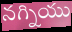
నగ్నియు